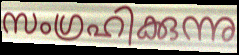
സംഗ്രഹിക്കുന്നു